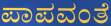
ಪಾಪವಂತೆ